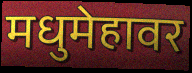
मधुमेहावर